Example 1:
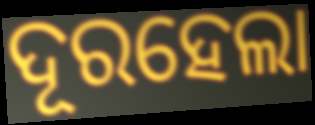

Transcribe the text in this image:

ଦୂରହେଲା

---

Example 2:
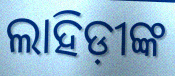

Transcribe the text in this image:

ଲାହିଡ଼ୀଙ୍କ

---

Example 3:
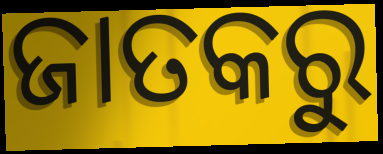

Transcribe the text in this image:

ଜାତକରୁ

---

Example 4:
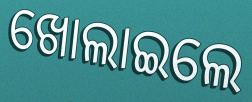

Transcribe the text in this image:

ଖୋଲାଇଲେ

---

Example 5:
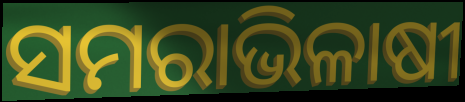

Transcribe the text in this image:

ସମରାଭିଳାଷୀ